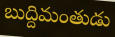
బుద్దిమంతుడు